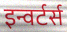
इन्वर्टर्स